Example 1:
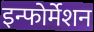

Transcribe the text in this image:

इन्फोर्मेशन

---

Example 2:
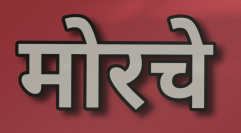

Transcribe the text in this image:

मोरचे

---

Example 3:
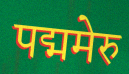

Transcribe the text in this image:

पद्ममेरु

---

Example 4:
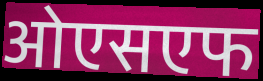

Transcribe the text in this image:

ओएसएफ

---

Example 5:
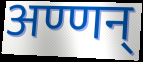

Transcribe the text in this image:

अण्णन्